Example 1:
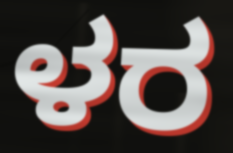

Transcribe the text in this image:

ಳರ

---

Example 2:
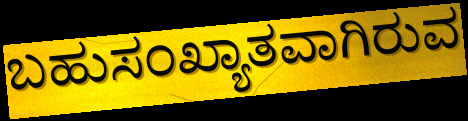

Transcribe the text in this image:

ಬಹುಸಂಖ್ಯಾತವಾಗಿರುವ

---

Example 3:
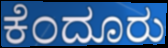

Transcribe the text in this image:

ಕೆಂದೂರು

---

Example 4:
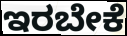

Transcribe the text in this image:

ಇರಬೇಕೆ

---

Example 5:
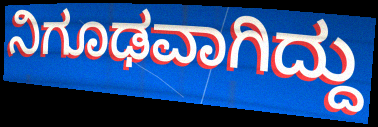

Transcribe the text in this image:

ನಿಗೂಢವಾಗಿದ್ದು